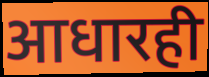
आधारही